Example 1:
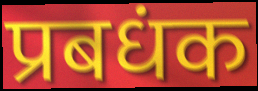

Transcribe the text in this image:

प्रबधंक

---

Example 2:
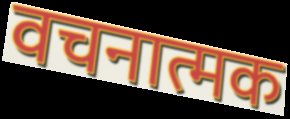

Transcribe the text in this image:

वचनात्मक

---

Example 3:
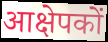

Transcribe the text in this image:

आक्षेपकों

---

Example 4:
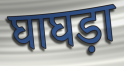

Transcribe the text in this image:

घाघड़ा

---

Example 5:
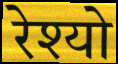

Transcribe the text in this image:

रेश्यो